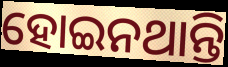
ହୋଇନଥାନ୍ତି